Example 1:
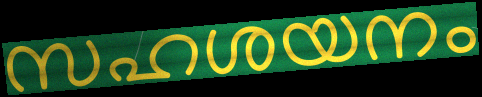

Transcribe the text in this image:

സഹശയനം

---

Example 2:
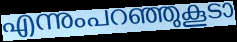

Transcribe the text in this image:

എന്നുംപറഞ്ഞുകൂടാ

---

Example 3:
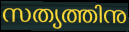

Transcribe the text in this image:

സത്യത്തിനു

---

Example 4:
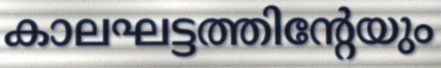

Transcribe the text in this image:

കാലഘട്ടത്തിന്റേയും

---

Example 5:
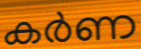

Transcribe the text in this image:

കർണ